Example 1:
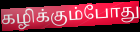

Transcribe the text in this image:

கழிக்கும்போது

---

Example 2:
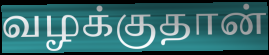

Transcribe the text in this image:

வழக்குதான்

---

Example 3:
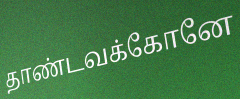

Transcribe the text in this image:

தாண்டவக்கோனே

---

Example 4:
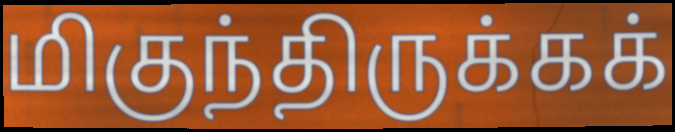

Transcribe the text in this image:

மிகுந்திருக்கக்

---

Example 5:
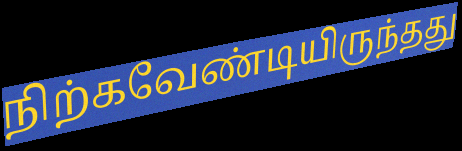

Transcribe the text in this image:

நிற்கவேண்டியிருந்தது